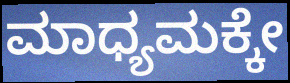
ಮಾಧ್ಯಮಕ್ಕೇ